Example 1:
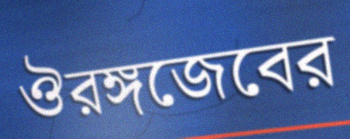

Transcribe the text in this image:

ঔরঙ্গজেবের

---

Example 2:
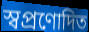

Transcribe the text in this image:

স্বপ্রণোদিত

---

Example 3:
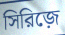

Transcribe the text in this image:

সিরিজ়ে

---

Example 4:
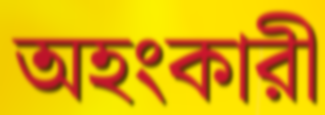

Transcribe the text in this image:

অহংকারী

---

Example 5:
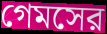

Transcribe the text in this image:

গেমসের